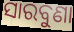
ସାରବୁଣା